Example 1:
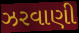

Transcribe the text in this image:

ઝરવાણી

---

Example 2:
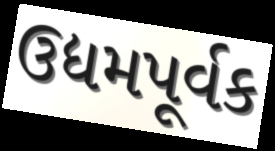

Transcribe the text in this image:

ઉદ્યમપૂર્વક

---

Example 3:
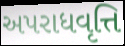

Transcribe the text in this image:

અપરાધવૃત્તિ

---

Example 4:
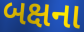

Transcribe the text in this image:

બક્ષના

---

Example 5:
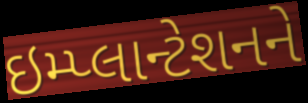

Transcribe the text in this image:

ઇમ્પ્લાન્ટેશનને